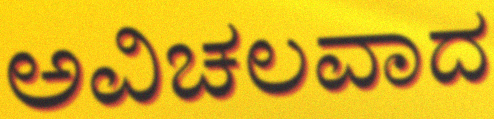
ಅವಿಚಲವಾದ